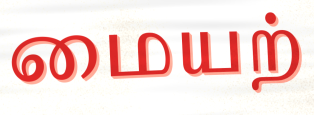
மையற்